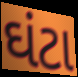
ઘંટા